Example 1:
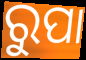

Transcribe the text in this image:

ରୁପା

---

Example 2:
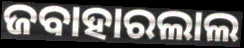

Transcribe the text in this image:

ଜବାହାରଲାଲ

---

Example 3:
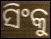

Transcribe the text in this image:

ସିଂକୁ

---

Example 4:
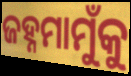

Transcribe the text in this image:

ଜହ୍ନମାମୁଁକୁ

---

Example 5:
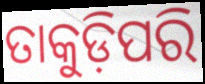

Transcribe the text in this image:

ତାକୁଡ଼ିପରି